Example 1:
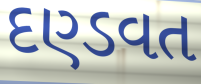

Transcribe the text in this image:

દણ્ડવત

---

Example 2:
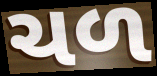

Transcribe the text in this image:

ચળ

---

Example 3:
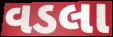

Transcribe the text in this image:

વડલા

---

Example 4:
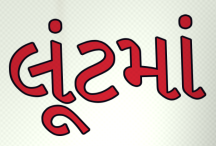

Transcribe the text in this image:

લૂંટમાં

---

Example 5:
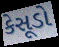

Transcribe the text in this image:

કેસૂડો